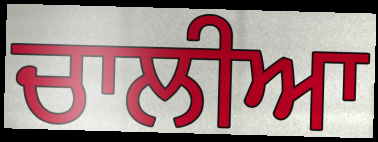
ਚਾਲੀਆ